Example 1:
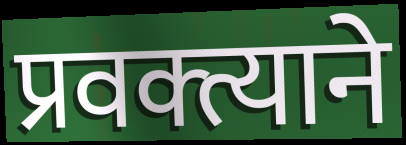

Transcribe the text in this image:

प्रवक्‍त्याने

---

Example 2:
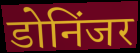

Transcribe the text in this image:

डोनिंजर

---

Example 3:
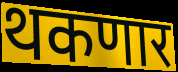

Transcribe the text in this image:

थकणार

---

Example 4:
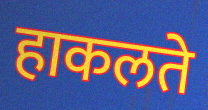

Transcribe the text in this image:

हाकलते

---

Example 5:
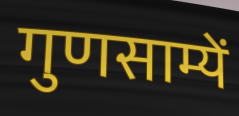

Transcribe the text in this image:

गुणसाम्यें